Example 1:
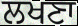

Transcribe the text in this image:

ਲਖਣਾ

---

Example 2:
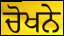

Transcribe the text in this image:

ਚੋਖਨੇ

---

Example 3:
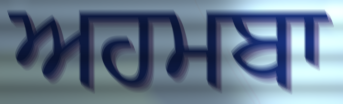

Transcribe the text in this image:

ਅਹਮਬਾ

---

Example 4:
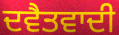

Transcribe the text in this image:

ਦਵੈਤਵਾਦੀ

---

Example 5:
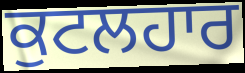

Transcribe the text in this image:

ਕੁਟਲਹਾਰ